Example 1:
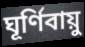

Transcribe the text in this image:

ঘূর্ণিবায়ু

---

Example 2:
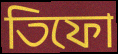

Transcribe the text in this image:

তিফো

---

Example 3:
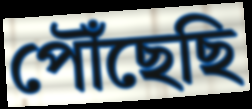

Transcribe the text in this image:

পৌঁছেছি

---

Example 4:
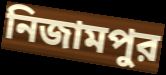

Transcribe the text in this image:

নিজামপুর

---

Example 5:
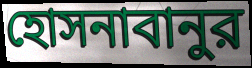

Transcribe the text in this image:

হোসনাবানুর